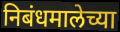
निबंधमालेच्या